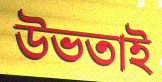
উভতাই